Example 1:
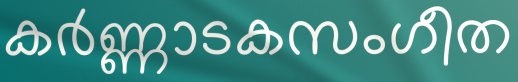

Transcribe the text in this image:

കർണ്ണാടകസംഗീത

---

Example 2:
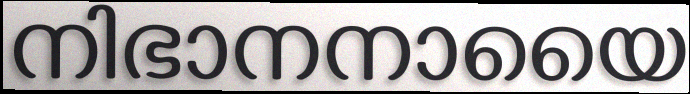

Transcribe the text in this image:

നിഭാനനായൈ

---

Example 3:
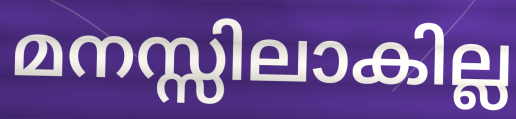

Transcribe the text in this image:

മനസ്സിലാകില്ല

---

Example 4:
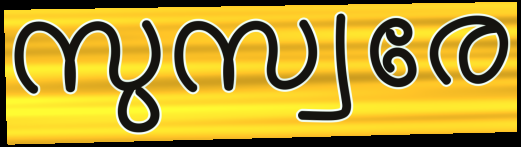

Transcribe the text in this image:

സുസ്വരേ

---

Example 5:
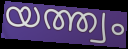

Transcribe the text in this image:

യത്ത്വം